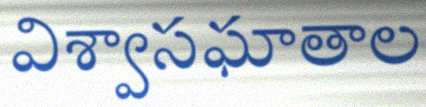
విశ్వాసఘాతాల